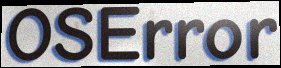
OSError